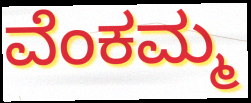
ವೆಂಕಮ್ಮ